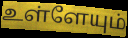
உள்ளேயும்